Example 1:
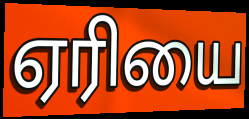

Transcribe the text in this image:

ஏரியை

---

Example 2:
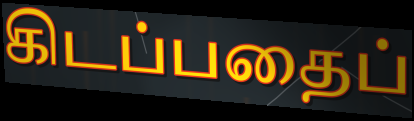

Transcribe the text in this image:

கிடப்பதைப்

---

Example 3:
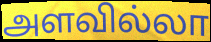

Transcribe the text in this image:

அளவில்லா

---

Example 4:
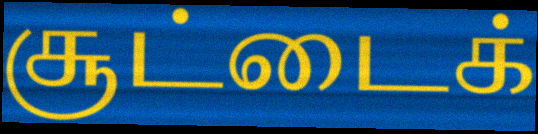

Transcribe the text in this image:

சூட்டைக்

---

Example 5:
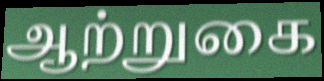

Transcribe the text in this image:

ஆற்றுகை